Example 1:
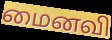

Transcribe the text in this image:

மைனவி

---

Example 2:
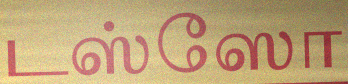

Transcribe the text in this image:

டஸ்ஸோ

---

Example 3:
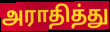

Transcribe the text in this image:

அராதித்து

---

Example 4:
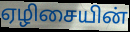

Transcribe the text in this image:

ஏழிசையின்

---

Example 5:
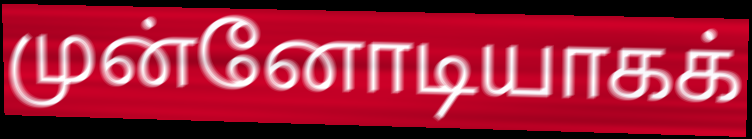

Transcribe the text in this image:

முன்னோடியாகக்